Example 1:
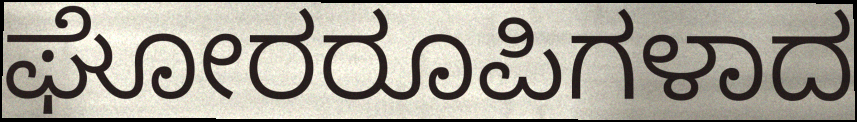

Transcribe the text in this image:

ಘೋರರೂಪಿಗಳಾದ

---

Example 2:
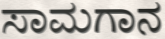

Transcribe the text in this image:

ಸಾಮಗಾನ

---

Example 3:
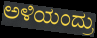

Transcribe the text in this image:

ಅಳಿಯಂದ್ರು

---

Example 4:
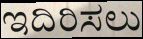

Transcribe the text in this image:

ಇದಿರಿಸಲು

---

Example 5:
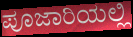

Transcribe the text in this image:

ಪೂಜಾರಿಯಲ್ಲಿ